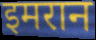
इमरान